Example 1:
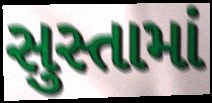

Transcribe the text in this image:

સુસ્તામાં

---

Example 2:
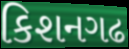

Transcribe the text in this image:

કિશનગઢ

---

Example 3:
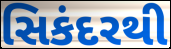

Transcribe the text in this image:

સિકંદરથી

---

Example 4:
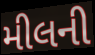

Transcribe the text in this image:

મીલની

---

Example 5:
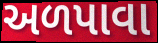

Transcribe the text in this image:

અળપાવા